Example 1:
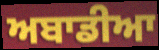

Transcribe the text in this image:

ਅਬਾਡੀਆ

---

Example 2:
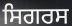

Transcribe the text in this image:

ਸਿਗਰਸ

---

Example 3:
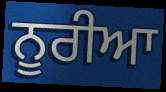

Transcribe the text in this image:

ਨੂਰੀਆ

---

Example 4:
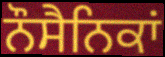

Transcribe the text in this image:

ਨੌਸੈਨਿਕਾਂ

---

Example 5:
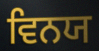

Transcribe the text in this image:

ਵਿਨਯ